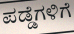
ಪಡ್ಡೆಗಳಿಗೆ